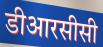
डीआरसीसी